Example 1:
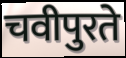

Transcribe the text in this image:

चवीपुरते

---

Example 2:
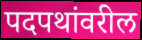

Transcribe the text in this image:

पदपथांवरील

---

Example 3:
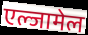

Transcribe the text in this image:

एल्जामेल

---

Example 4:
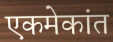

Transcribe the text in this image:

एकमेकांत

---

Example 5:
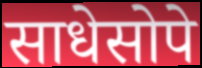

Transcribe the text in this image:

साधेसोपे